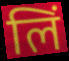
लिं